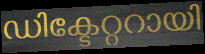
ഡിക്ടേറ്ററായി